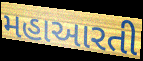
મહાઆરતી